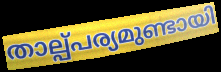
താല്പ്പര്യമുണ്ടായി